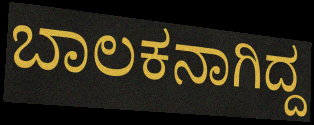
ಬಾಲಕನಾಗಿದ್ದ